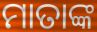
ମାତାଙ୍କ